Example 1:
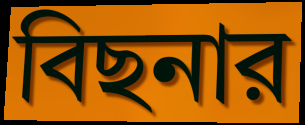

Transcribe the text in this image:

বিছনার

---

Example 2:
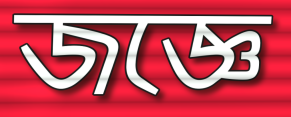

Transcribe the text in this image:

জজ্ঞে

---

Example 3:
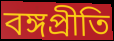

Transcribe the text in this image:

বঙ্গপ্রীতি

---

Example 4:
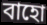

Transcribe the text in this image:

বাহো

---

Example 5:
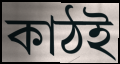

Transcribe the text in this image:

কাঠই